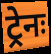
ट्रेनः